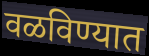
वळविण्यात